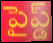
పైప్డ్